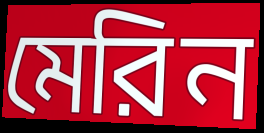
মেরিন